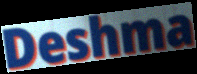
Deshma